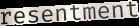
resentment